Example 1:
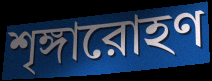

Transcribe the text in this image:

শৃঙ্গারোহণ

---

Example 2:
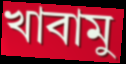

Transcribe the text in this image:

খাবামু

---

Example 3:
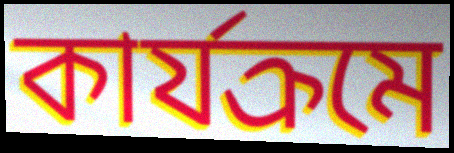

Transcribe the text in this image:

কার্যক্রমে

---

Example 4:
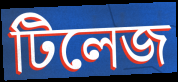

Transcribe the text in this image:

টিলেজ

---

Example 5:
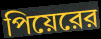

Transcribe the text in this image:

পিয়েরের